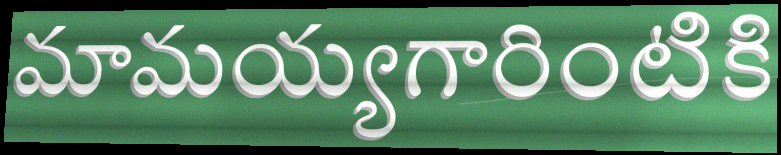
మామయ్యగారింటికి